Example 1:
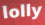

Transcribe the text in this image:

lolly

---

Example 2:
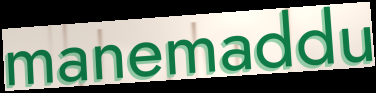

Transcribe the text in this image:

manemaddu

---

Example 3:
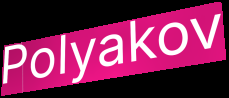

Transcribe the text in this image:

Polyakov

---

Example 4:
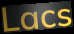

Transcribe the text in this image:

Lacs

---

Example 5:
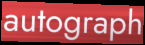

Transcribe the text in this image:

autograph